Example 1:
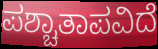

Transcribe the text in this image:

ಪಶ್ಚಾತಾಪವಿದೆ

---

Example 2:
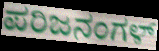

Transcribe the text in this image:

ಪರಿಜನಂಗಳ್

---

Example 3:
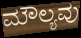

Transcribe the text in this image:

ಮೌಲ್ಯವು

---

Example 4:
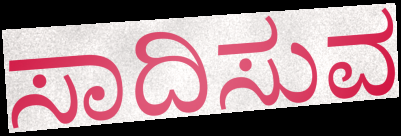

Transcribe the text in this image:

ಸಾದಿಸುವ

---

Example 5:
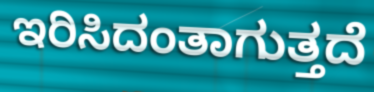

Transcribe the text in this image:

ಇರಿಸಿದಂತಾಗುತ್ತದೆ